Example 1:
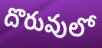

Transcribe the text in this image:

దొరువులో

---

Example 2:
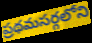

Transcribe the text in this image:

ప్రథమసర్గలోని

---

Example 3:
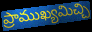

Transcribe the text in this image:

ప్రాముఖ్యమిచ్చి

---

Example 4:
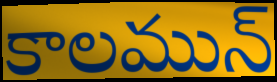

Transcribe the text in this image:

కాలమున్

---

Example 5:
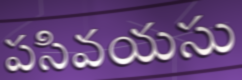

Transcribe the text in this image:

పసివయసు